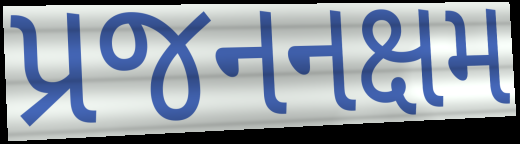
પ્રજનનક્ષમ